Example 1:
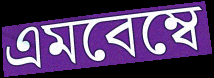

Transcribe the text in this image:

এমবেম্বে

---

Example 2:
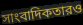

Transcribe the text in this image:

সাংবাদিকতারও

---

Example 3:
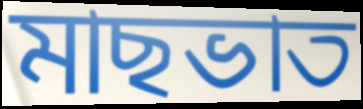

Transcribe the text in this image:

মাছভাত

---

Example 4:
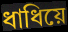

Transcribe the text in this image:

ধাধিয়ে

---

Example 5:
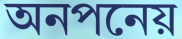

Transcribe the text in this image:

অনপনেয়